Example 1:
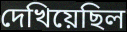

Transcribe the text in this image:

দেখিয়েছিল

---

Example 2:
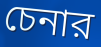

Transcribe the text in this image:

চেনার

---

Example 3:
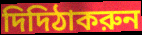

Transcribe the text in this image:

দিদিঠাকরুন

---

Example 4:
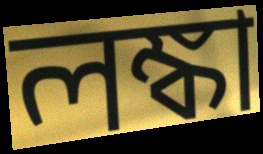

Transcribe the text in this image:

লঙ্কা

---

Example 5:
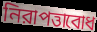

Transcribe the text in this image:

নিরাপত্তাবোধ